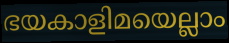
ഭയകാളിമയെല്ലാം